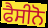
ਫੈਸੀਨੋ